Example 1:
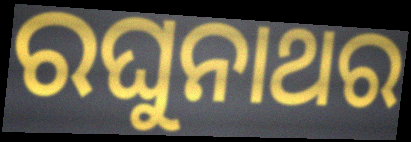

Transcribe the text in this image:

ରଘୁନାଥର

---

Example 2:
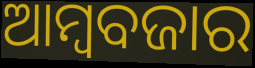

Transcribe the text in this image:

ଆମ୍ୱବଜାର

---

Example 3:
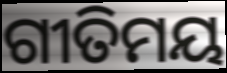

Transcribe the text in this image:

ଗୀତିମୟ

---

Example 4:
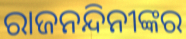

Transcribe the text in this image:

ରାଜନନ୍ଦିନୀଙ୍କର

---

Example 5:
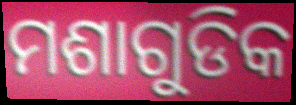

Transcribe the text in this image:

ମଶାଗୁଡିକ